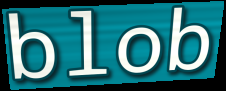
blob